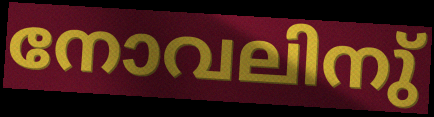
നോവലിനു്